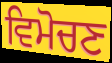
ਵਿਮੋਚਣ